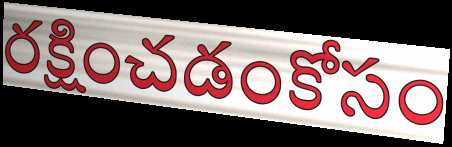
రక్షించడంకోసం